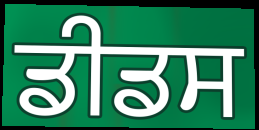
ਡੀਡਸ